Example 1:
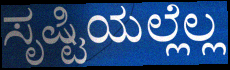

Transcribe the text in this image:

ಸೃಷ್ಟಿಯಲ್ಲೆಲ್ಲ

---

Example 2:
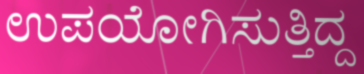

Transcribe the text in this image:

ಉಪಯೋಗಿಸುತ್ತಿದ್ದ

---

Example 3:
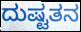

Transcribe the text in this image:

ದುಷ್ಟತನ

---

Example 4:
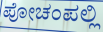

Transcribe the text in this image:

ಪೋಚಂಪಲ್ಲಿ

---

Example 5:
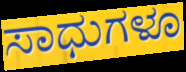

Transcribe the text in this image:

ಸಾಧುಗಳೂ